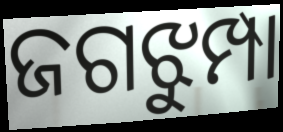
ଜଗଝୁମ୍ପା